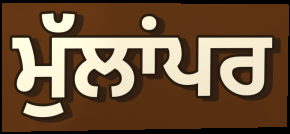
ਮੁੱਲਾਂਪਰ